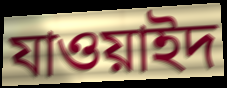
যাওয়াইদ